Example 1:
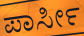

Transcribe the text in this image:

ಪಾರ್ಸೀ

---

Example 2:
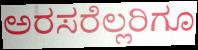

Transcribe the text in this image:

ಅರಸರೆಲ್ಲರಿಗೂ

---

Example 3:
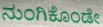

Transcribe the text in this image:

ನುಂಗಿಕೊಂಡೇ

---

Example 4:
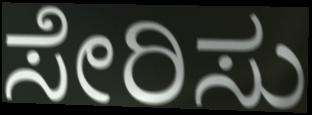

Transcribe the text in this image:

ಸೇರಿಸು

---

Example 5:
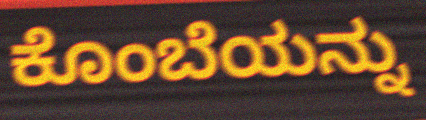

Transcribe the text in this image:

ಕೊಂಬೆಯನ್ನು